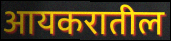
आयकरातील